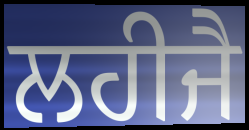
ਲਹੀਜੈ